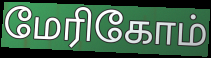
மேரிகோம்